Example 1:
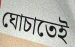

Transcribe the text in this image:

ঘোচাতেই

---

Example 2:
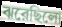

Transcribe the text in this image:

ঝরেছিলো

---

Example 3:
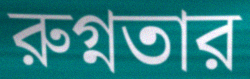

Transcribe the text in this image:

রুগ্নতার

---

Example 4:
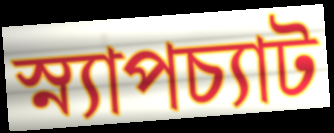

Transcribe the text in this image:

স্ন্যাপচ্যাট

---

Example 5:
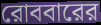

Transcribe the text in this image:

রোববারের